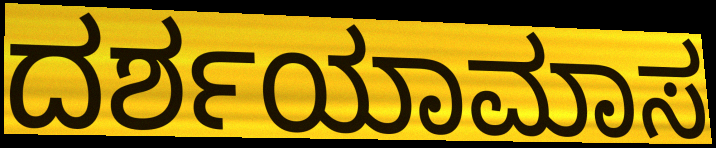
ದರ್ಶಯಾಮಾಸ